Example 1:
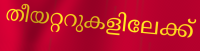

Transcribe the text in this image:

തീയറ്ററുകളിലേക്ക്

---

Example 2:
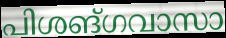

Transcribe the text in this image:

പിശങ്ഗവാസാ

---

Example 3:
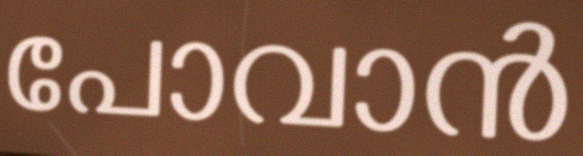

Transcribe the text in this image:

പോവാൻ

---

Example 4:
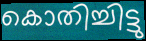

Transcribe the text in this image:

കൊതിച്ചിട്ടു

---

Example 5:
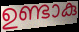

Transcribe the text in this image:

ഉണ്ടാകു